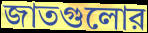
জাতগুলোর